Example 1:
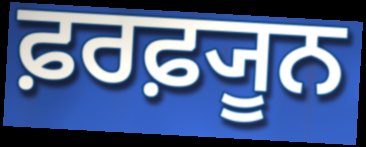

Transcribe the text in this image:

ਫ਼ਰਫ਼੍ਯੂਨ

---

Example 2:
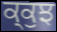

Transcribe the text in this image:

ਕ੍ਕੁਝ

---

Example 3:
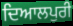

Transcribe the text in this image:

ਦਿਆਲਪੁਰੀ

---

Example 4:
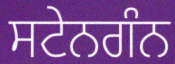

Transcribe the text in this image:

ਸਟੇਨਗੰਨ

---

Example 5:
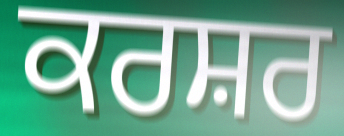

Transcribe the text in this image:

ਕਰਸ਼ਰ